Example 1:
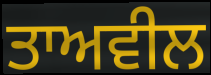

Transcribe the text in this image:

ਤਾਅਵੀਲ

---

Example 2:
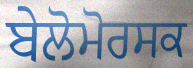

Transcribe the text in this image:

ਬੇਲੋਮੋਰਸਕ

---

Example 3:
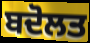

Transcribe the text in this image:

ਬਦੋਲਤ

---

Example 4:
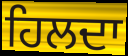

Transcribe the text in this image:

ਹਿਲਦਾ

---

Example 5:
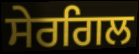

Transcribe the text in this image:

ਸੇਰਗਿਲ